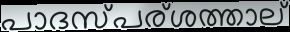
പാദസ്പര്ശത്താല്